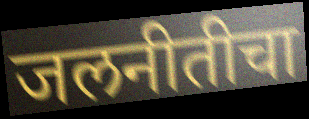
जलनीतीचा